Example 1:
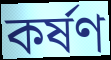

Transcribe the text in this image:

কর্ষণ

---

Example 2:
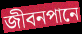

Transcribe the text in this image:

জীবনপানে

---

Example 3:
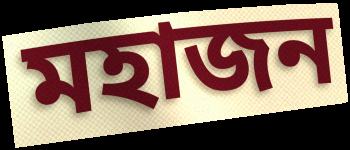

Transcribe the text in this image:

মহাজন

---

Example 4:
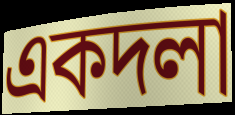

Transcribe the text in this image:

একদলা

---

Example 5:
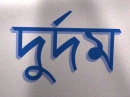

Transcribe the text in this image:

দুর্দম